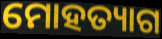
ମୋହତ୍ୟାଗ